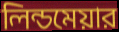
লিন্ডমেয়ার